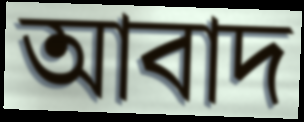
আবাদ